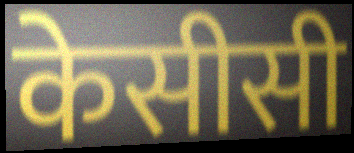
केसीसी